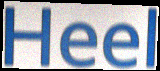
Heel